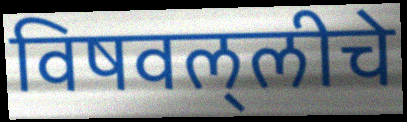
विषवल्लीचे